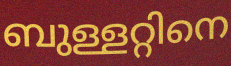
ബുള്ളറ്റിനെ